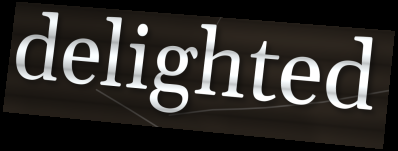
delighted